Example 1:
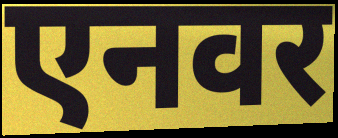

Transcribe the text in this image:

एनवर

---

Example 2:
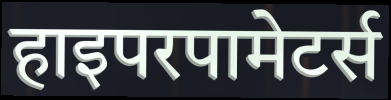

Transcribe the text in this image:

हाइपरपामेटर्स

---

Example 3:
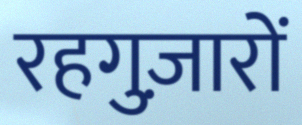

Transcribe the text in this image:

रहगुज़ारों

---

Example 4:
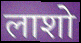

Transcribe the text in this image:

लाशो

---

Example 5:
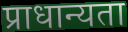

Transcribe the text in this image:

प्राधान्यता